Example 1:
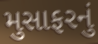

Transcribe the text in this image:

મુસાફરનું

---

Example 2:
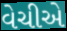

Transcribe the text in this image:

વેચીએ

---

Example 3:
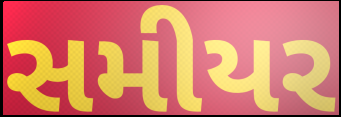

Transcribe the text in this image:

સમીયર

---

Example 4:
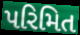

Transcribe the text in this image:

પરિમિત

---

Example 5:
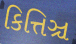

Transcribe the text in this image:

કિત્તિઞ્ચ